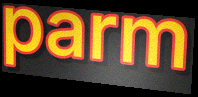
parm